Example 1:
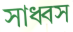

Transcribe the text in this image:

সাধ্বস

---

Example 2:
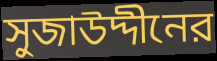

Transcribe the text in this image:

সুজাউদ্দীনের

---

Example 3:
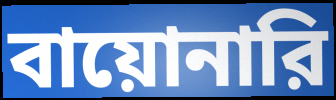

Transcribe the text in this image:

বায়োনারি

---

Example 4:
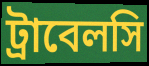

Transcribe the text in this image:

ট্রাবেলসি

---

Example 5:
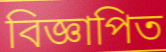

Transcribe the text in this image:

বিজ্ঞাপিত